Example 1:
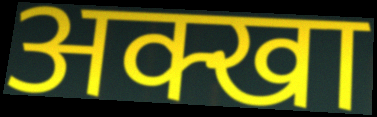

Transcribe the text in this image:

अक्खा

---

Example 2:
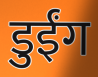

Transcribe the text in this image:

डुईंग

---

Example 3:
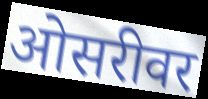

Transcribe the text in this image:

ओसरीवर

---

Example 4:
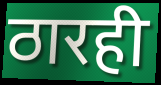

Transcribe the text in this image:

ठारही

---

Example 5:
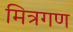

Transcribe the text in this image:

मित्रगण